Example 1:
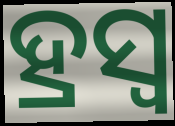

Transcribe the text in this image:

ହ୍ରସ୍ୱ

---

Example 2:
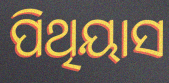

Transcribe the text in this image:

ପିଥିୟାସ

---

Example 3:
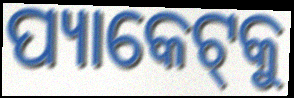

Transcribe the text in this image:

ପ୍ୟାକେଟ୍‌କୁ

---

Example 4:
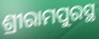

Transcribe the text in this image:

ଶ୍ରୀରାମପୁରସ୍ଥ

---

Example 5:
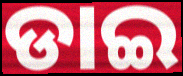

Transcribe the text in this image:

ଡାଇ